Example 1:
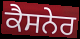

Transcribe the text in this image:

ਕੈਸਨੇਰ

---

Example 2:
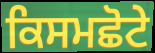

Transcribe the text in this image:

ਕਿਸਮਛੋਟੇ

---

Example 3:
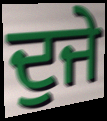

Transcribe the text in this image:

ਦੁਜੇ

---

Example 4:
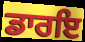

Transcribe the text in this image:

ਡਾਰਇ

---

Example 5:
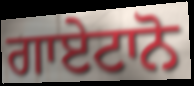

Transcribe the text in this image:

ਗਾਏਟਾਨੋ